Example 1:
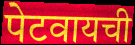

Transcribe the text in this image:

पेटवायची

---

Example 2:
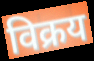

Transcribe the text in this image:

विक्रय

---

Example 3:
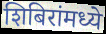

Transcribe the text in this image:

शिबिरांमध्ये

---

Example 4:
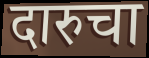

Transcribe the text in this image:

दारुचा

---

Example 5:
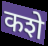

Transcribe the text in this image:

कशे